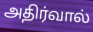
அதிர்வால்